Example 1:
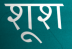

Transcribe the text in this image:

शूश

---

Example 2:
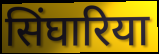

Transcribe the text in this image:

सिंघारिया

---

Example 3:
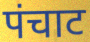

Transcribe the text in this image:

पंचाट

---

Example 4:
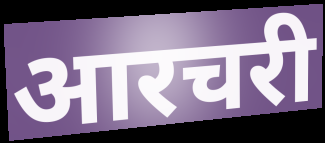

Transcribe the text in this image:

आरचरी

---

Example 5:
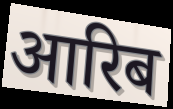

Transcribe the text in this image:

आरिब